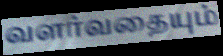
வளர்வதையும்